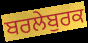
ਬਰਲੇਬੁਰਕ